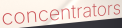
concentrators